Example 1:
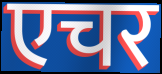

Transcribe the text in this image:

एचर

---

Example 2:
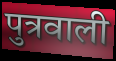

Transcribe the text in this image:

पुत्रवाली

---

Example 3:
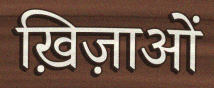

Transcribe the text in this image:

ख़िज़ाओं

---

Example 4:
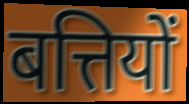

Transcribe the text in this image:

बत्तियों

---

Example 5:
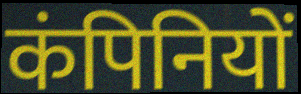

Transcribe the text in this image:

कंपिनियों